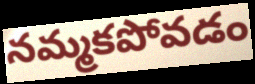
నమ్మకపోవడం